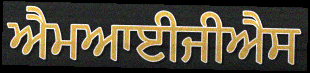
ਐਮਆਈਜੀਐਸ